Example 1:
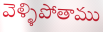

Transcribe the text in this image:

వెళ్ళిపోతాము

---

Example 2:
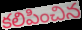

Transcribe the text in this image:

కలిపించిన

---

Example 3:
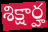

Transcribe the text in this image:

శిక్షార్హ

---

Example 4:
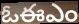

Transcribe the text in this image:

ఓఈఎం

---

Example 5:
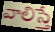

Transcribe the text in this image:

వాలిస్తే